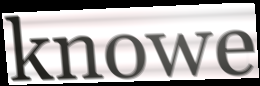
knowe